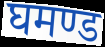
घमण्ड